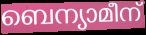
ബെന്യാമീന്